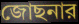
জোছনার